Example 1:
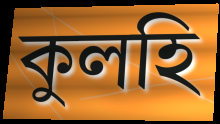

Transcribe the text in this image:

কুলহি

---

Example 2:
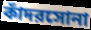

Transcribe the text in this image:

কাঁদরসোনা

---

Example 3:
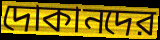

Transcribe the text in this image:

দোকানদের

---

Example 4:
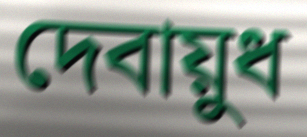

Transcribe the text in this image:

দেবায়ুধ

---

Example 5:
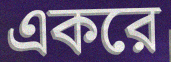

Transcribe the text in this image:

একরে